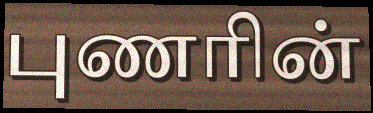
புணரின்